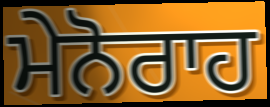
ਮੇਨੋਰਾਹ